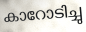
കാറോടിച്ചു